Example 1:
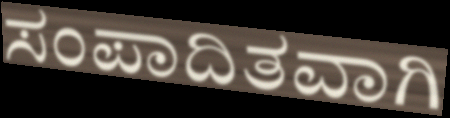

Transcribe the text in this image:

ಸಂಪಾದಿತವಾಗಿ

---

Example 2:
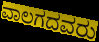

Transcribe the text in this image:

ವಾಲಗದವರು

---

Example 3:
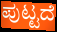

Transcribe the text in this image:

ಪುಟ್ಟದೆ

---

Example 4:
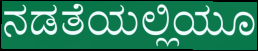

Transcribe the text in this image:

ನಡತೆಯಲ್ಲಿಯೂ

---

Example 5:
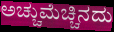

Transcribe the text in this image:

ಅಚ್ಚುಮೆಚ್ಚಿನದು